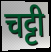
चट्टी